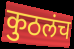
कुठलंच